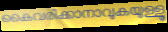
കൈവരിക്കാനാവുകയുള്ളൂ